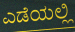
ಎಡೆಯಲ್ಲಿ